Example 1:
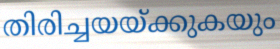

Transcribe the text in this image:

തിരിച്ചയയ്ക്കുകയും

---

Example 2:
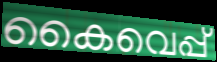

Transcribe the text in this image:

കൈവെപ്പ്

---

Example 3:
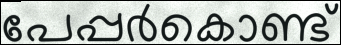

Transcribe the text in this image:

പേപ്പർകൊണ്ട്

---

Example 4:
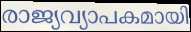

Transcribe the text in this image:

രാജ്യവ്യാപകമായി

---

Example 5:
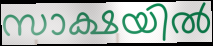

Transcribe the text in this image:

സാക്ഷയിൽ